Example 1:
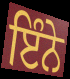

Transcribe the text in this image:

ਇੰਨੇ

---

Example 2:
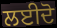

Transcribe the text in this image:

ਲਈਦੋ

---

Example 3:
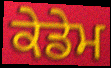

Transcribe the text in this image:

ਕੇਡੇਮ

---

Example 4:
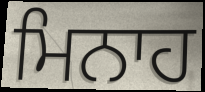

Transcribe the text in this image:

ਮਿਨਾਹ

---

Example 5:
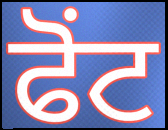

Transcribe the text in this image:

ਫੋਂਟ